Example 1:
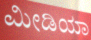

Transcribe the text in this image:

ಮೀಡಿಯಾ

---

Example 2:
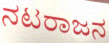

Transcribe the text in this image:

ನಟರಾಜನ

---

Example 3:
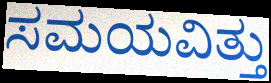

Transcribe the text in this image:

ಸಮಯವಿತ್ತು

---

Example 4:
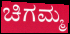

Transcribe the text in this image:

ಚಿಗಮ್ಮ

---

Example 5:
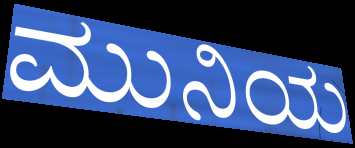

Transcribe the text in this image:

ಮುನಿಯ